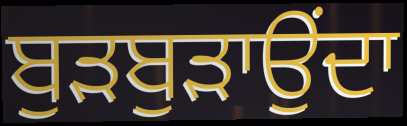
ਬੁੜਬੁੜਾਉਂਦਾ